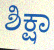
ಶಿಕ್ಷಾ